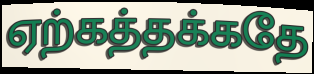
ஏற்கத்தக்கதே